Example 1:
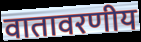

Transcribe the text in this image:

वातावरणीय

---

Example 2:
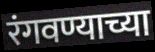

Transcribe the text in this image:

रंगवण्याच्या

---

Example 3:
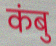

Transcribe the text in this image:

कंबु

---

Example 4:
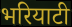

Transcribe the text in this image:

भरियाटी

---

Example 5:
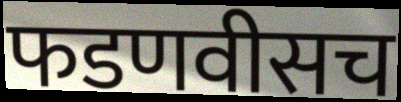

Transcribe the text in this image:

फडणवीसच